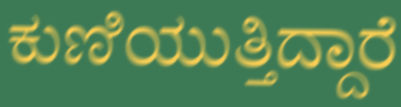
ಕುಣಿಯುತ್ತಿದ್ದಾರೆ